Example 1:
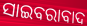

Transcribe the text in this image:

ସାଇବରାବାଦ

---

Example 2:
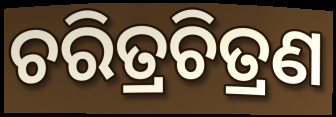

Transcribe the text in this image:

ଚରିତ୍ରଚିତ୍ରଣ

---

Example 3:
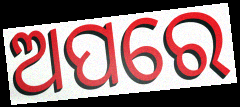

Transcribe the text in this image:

ଅପରେ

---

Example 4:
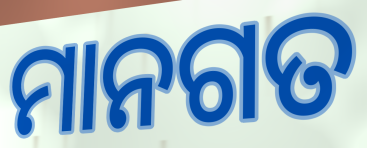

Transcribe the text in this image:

ମାନଗତ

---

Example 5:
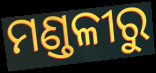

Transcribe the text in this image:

ମଣ୍ଡଳୀରୁ